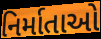
નિર્માતાઓ